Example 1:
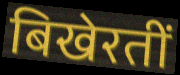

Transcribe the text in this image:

बिखेरतीं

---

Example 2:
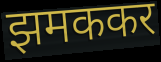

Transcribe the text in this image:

झमककर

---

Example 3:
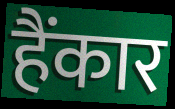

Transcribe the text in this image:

हैंकार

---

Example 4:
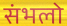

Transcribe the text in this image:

संभलो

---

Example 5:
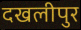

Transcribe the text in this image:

दखलीपुर